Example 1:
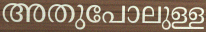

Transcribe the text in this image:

അതുപോലുള്ള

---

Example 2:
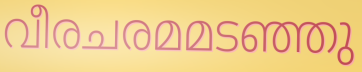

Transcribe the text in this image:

വീരചരമമടഞ്ഞു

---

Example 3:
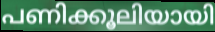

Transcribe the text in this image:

പണിക്കൂലിയായി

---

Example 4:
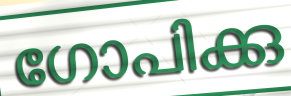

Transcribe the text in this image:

ഗോപിക്കു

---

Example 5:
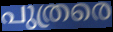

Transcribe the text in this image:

പുത്രരെ